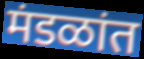
मंडळांत